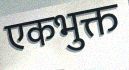
एकभुक्त